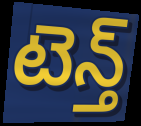
టెన్త్